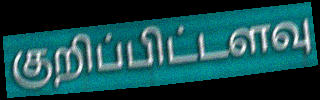
குறிப்பிட்டளவு